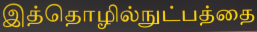
இத்தொழில்நுட்பத்தை